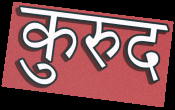
कुरुद